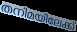
തനിമയിലേക്ക്